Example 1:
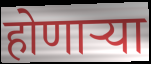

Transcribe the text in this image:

होणार्‍या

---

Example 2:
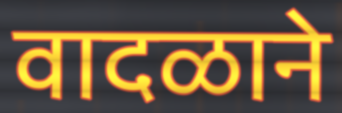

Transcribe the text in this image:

वादळाने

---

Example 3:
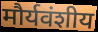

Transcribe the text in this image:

मौर्यवंशीय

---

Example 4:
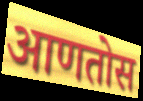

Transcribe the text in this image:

आणतोस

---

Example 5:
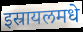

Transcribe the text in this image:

इस्रायलमधे